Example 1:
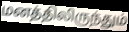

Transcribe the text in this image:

மனத்திலிருந்தும்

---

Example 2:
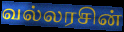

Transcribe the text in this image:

வல்லரசின்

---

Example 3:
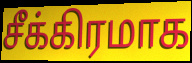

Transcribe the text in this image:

சீக்கிரமாக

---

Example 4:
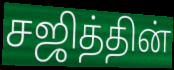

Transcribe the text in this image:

சஜித்தின்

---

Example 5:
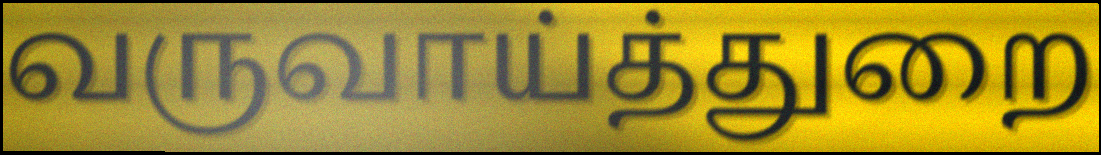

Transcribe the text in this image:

வருவாய்த்துறை